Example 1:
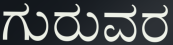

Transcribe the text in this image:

ಗುರುವರ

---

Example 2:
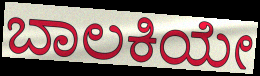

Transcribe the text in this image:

ಬಾಲಕಿಯೇ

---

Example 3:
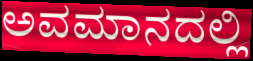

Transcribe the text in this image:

ಅವಮಾನದಲ್ಲಿ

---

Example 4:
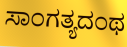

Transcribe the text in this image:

ಸಾಂಗತ್ಯದಂಥ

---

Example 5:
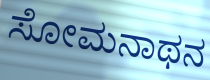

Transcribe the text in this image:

ಸೋಮನಾಥನ